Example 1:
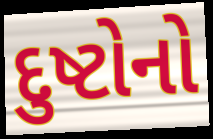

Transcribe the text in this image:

દુષ્ટોનો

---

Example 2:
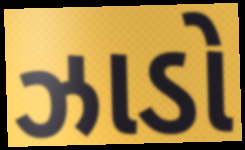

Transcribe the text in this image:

ઝાડો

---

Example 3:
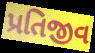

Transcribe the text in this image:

પ્રતિજીવ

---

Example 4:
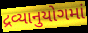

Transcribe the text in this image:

દ્રવ્યાનુયોગમાં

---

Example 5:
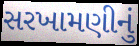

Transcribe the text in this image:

સરખામણીનું